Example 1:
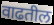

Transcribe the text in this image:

वाढतील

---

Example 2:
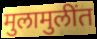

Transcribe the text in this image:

मुलामुलींत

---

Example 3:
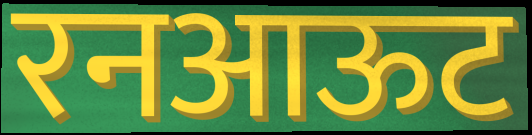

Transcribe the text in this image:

रनआऊट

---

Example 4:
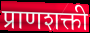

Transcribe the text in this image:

प्राणशक्ती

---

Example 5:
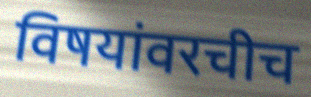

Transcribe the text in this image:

विषयांवरचीच